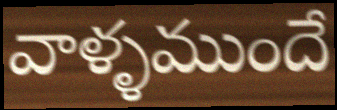
వాళ్ళముందే